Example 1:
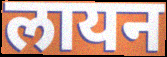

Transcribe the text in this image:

लायन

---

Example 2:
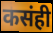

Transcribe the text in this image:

कसंही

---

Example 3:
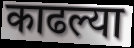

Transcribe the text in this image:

काढल्या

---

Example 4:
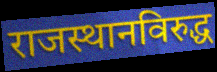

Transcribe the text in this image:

राजस्थानविरुद्ध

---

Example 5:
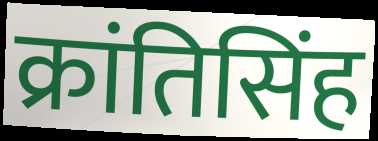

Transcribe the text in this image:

क्रांतिसिंह